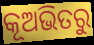
କୂଅଭିତରୁ